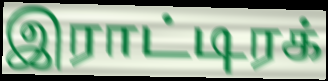
இராட்டிரக்